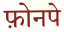
फ़ोनपे